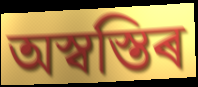
অস্বস্তিৰ